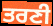
ਤਰਣੀ